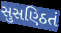
સુસણ્ઠિતં